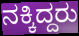
ನಕ್ಕಿದ್ದರು